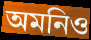
অমনিও